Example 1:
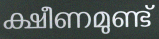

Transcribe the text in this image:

ക്ഷീണമുണ്ട്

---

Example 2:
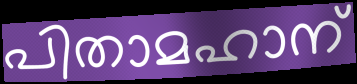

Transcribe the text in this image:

പിതാമഹാന്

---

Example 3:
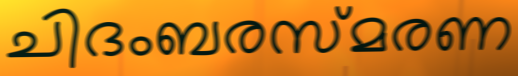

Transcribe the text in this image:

ചിദംബരസ്മരണ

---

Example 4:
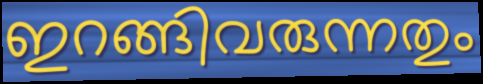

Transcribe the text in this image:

ഇറങ്ങിവരുന്നതും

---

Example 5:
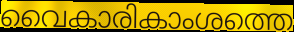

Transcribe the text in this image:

വൈകാരികാംശത്തെ